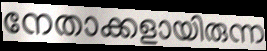
നേതാക്കളായിരുന്ന